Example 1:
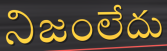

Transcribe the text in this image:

నిజంలేదు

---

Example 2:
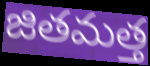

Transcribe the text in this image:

జితమత్త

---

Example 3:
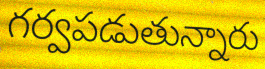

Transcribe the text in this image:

గర్వపడుతున్నారు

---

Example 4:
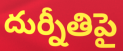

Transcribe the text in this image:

దుర్నీతిపై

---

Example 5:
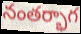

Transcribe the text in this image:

నంతర్భాగ